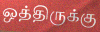
ஒத்திருக்கு